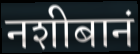
नशीबानं